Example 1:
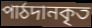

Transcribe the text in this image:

পাঠদানকৃত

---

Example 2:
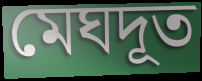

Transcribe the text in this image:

মেঘদূত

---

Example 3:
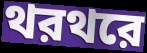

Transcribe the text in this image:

থরথরে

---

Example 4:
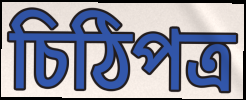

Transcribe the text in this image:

চিঠিপত্র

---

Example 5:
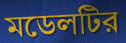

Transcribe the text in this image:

মডেলটির